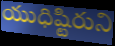
యుధిష్టిరుని